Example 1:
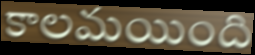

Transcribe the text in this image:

కాలమయింది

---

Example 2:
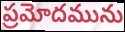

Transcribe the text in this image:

ప్రమోదమును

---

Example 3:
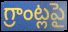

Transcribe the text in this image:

గ్రాంట్లపై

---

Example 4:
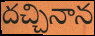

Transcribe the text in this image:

దచ్చినాన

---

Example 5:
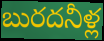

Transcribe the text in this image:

బురదనీళ్ల